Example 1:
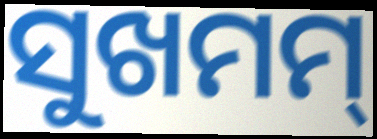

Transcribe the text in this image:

ସୁଖମମ୍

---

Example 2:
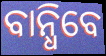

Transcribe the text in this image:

ବାନ୍ଧିବେ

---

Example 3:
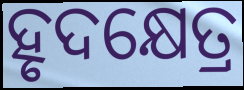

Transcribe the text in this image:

ହୃଦକ୍ଷେତ୍ର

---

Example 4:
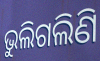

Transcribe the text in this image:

ଭୁଲିଗଲିଣି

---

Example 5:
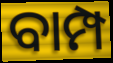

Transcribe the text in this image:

ବାମ୍ପ